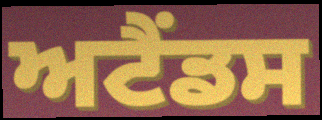
ਅਟੈਂਡਸ